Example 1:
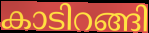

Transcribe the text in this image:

കാടിറങ്ങി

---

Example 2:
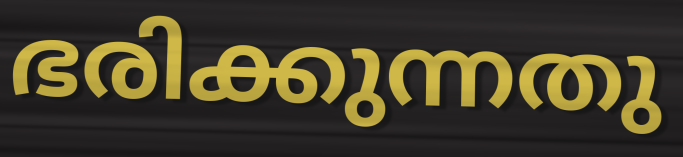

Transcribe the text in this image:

ഭരിക്കുന്നതു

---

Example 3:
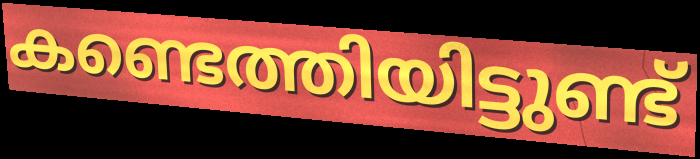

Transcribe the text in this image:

കണ്ടെത്തിയിട്ടുണ്ട്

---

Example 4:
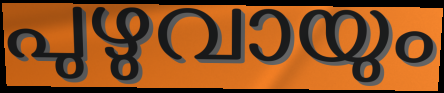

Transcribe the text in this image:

പുഴുവായും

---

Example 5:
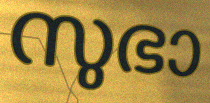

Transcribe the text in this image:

സുഭാ